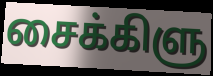
சைக்கிளு